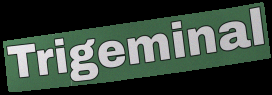
Trigeminal